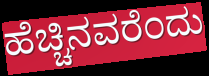
ಹೆಚ್ಚಿನವರೆಂದು